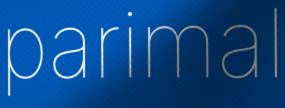
parimal